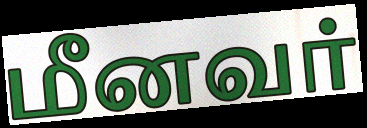
மீனவர்